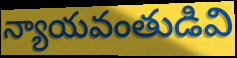
న్యాయవంతుడివి